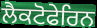
ਲੈਕਟੋਫੇਰਿਨ